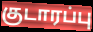
குடாரப்பு